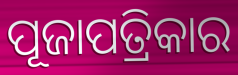
ପୂଜାପତ୍ରିକାର